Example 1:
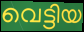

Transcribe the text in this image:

വെട്ടിയ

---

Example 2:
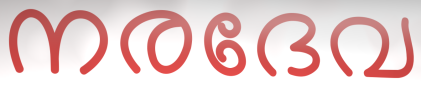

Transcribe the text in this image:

നരദേവ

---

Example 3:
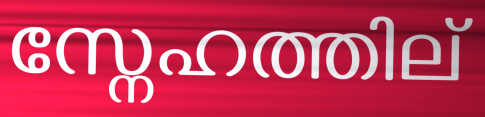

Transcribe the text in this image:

സ്നേഹത്തില്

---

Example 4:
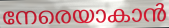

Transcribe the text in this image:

നേരെയാകാൻ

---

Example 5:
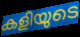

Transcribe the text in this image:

കളിയുടെ